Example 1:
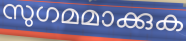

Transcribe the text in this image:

സുഗമമാക്കുക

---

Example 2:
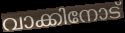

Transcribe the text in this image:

വാക്കിനോട്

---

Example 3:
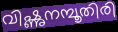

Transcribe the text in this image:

വിഷ്ണുനമ്പൂതിരി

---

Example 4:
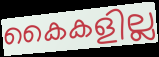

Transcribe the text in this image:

കൈകളില്ല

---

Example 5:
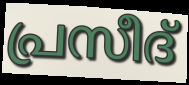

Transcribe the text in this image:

പ്രസീദ്